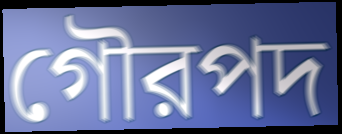
গৌরপদ